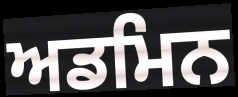
ਅਡਮਿਨ